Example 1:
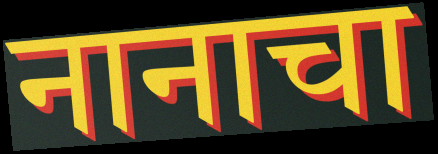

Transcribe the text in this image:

नानाचा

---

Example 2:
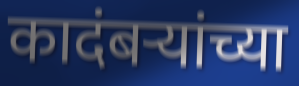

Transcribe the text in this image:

कादंबऱ्यांच्या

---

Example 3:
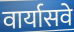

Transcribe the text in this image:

वार्यासवे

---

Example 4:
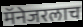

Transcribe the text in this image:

मॅनेजरलाच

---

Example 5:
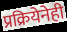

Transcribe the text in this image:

प्रक्रियेनेही